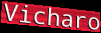
Vicharo